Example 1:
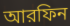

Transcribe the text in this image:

আরফিন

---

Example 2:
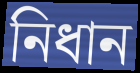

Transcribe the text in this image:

নিধান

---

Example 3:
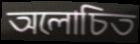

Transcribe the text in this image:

অলোচিত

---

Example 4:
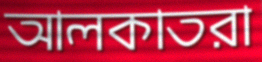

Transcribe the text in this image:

আলকাতরা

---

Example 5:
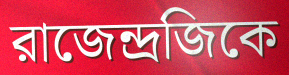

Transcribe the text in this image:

রাজেন্দ্রজিকে